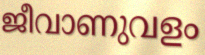
ജീവാണുവളം